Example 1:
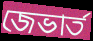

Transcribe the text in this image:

জেভার্ত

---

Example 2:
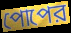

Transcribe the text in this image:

পোপের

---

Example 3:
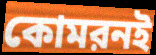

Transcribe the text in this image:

কোমরনই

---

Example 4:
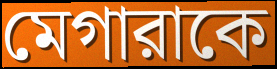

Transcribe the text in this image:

মেগারাকে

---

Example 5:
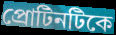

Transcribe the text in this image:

প্রোটিনটিকে